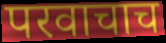
परवाचाच